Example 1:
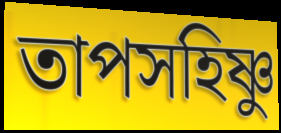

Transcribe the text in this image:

তাপসহিষ্ণু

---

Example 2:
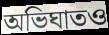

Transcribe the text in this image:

অভিঘাতও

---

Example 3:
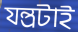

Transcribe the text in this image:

যন্ত্রটাই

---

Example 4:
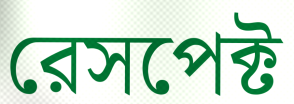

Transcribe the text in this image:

রেসপেক্ট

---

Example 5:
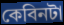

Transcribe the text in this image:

কেবিনটা